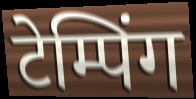
टेम्पिंग